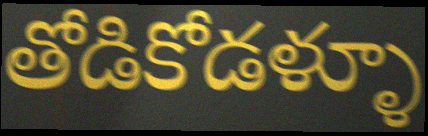
తోడికోడళ్ళూ